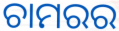
ଚାମରର